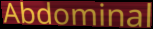
Abdominal